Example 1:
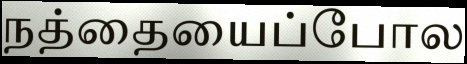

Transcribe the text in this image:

நத்தையைப்போல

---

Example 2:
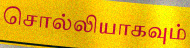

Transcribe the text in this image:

சொல்லியாகவும்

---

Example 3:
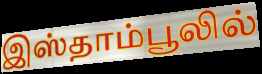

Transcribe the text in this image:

இஸ்தாம்பூலில்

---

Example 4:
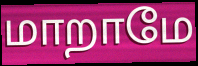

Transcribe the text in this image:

மாறாமே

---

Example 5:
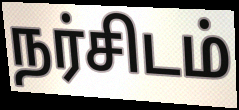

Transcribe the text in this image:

நர்சிடம்